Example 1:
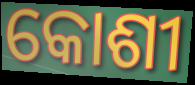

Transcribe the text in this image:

କୋଶୀ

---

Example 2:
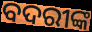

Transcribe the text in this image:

ବଦରୀଙ୍କ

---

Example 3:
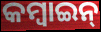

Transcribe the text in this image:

କମ୍ବାଇନ୍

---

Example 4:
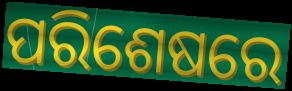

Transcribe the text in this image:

ପରିଶେଷରେ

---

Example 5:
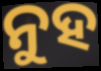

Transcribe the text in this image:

ନୁହ